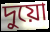
দুয়ো